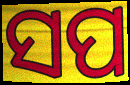
ସପ